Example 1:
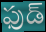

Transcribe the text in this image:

ఫుడ్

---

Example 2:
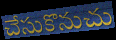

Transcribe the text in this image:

చేసుకొనుచు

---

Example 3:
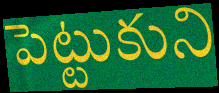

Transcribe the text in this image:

పెట్టుకుని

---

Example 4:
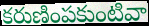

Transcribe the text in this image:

కరుణింపకుంటివా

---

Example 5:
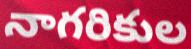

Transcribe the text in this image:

నాగరికుల